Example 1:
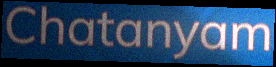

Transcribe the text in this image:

Chatanyam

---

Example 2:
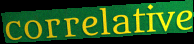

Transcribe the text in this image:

correlative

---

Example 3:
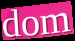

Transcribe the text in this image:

dom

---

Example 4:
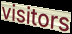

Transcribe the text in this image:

visitors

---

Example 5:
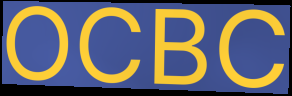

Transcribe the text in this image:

OCBC